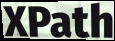
XPath